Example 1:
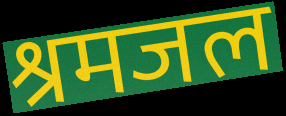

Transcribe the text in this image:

श्रमजल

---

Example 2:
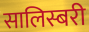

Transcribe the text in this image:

सालिस्बरी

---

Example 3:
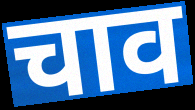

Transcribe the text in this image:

चाव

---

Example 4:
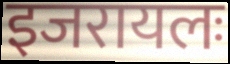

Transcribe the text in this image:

इजरायलः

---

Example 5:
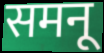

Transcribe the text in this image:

समनू